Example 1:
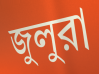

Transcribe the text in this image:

জুলুরা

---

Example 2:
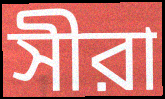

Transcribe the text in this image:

সীরা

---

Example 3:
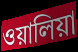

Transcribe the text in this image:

ওয়ালিয়া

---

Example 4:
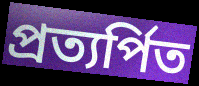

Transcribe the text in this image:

প্রত্যর্পিত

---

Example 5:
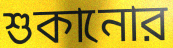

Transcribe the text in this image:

শুকানোর